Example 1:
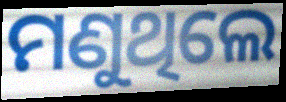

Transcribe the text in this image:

ମଣୁଥିଲେ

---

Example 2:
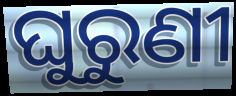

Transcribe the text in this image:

ଘୁରୁଣୀ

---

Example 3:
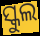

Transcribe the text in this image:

ସ୍କୁଲ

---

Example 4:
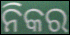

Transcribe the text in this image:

ନିକର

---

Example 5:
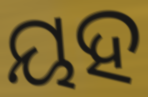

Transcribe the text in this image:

ୟହ